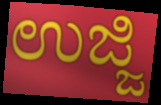
ಉಜ್ಜಿ